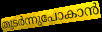
തുടർന്നുപോകാൻ